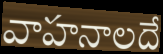
వాహనాలదే